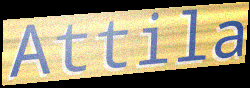
Attila